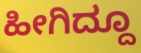
ಹೀಗಿದ್ದೂ